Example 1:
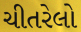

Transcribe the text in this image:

ચીતરેલો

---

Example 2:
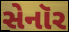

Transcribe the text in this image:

સેનૉર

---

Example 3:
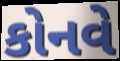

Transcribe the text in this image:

કોનવે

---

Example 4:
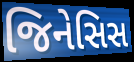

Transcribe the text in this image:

જિનેસિસ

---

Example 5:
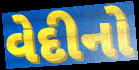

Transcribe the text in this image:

વેદીનો